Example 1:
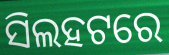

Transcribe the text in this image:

ସିଲହଟରେ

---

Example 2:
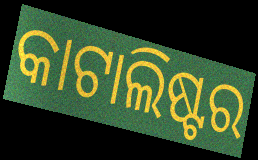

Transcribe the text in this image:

କାଟାଲିଷ୍ଟର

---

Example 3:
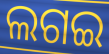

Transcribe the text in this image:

ଲଗଇ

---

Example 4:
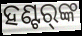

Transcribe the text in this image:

ହଣ୍ଟର୍‌ଙ୍କ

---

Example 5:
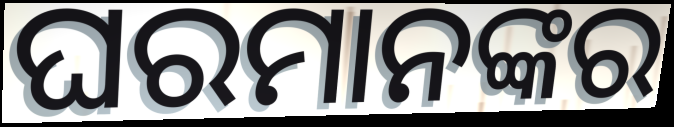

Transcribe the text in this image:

ଘରମାନଙ୍କର